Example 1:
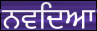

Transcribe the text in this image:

ਨਵਦਿਆ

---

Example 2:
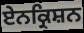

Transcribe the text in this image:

ਏਨਕ੍ਰਿਸ਼ਨ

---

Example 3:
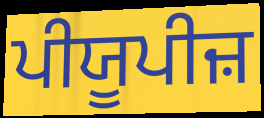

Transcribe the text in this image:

ਪੀਯੂਪੀਜ਼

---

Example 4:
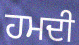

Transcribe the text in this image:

ਹਮਦੀ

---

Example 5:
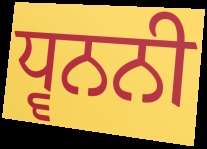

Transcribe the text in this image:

ਧ੍ਵਨਨੀ